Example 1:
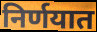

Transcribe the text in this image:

निर्णयात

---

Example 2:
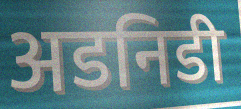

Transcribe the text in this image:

अडनिडी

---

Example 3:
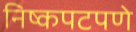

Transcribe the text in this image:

निष्कपटपणे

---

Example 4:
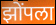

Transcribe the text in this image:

झोंपला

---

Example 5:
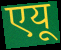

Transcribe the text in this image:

एयू